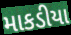
માકડીયા